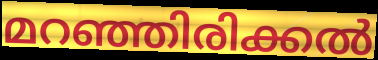
മറഞ്ഞിരിക്കൽ